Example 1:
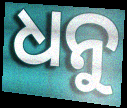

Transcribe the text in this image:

ଧନୁ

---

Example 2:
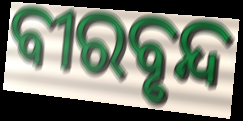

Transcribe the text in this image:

ବୀରବୃନ୍ଦ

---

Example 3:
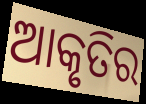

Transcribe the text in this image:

ଆକୃତିର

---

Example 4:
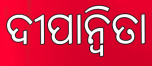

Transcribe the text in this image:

ଦୀପାନ୍ୱିତା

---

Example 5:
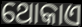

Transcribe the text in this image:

ଥୋକାଏ